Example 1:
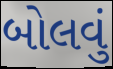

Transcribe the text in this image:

બોલવું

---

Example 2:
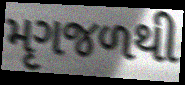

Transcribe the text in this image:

મૃગજળથી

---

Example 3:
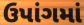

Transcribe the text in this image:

ઉપાંગમાં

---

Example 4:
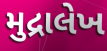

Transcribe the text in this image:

મુદ્રાલેખ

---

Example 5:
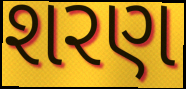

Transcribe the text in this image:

શરણ